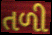
તળી